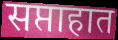
सप्ताहात